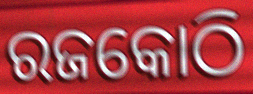
ରଜକୋଠି